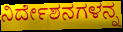
ನಿರ್ದೇಶನಗಳನ್ನ